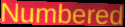
Numbered